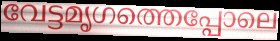
വേട്ടമൃഗത്തെപ്പോലെ